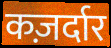
कज़र्दार